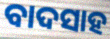
ବାଦସାହ